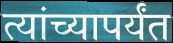
त्यांच्यापर्यंत